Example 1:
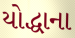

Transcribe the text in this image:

યોદ્ધાના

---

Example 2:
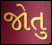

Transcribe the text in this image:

જોતુ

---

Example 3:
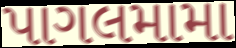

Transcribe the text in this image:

પાગલમામા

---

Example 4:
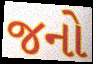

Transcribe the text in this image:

જનો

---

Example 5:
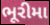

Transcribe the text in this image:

ભૂરીમા